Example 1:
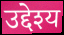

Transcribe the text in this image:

उद्देश्य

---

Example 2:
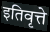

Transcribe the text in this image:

इतिवृत्ते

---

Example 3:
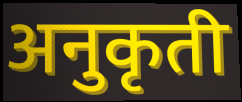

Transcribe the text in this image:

अनुकृती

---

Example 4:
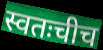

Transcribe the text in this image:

स्वतःचीच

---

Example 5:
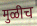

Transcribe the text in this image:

मुळीच